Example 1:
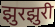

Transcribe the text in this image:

झुरझुरी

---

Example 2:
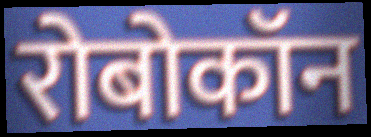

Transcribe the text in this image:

रोबोकॉन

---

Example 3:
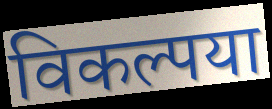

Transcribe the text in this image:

विकल्पया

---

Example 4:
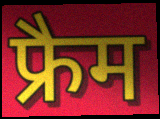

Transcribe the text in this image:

फ्रैम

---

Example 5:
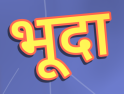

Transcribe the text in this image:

भूदा